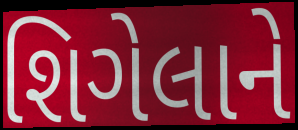
શિગેલાને